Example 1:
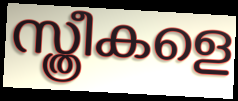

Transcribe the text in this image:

സ്ത്രീകളെ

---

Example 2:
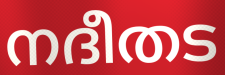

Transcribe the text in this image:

നദീതട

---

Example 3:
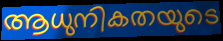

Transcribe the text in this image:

ആധുനികതയുടെ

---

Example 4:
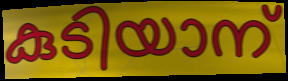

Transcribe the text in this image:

കുടിയാന്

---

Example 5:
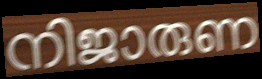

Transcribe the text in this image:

നിജാരുണ